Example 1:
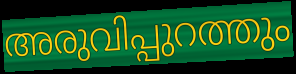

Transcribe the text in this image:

അരുവിപ്പുറത്തും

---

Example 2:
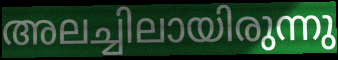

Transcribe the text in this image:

അലച്ചിലായിരുന്നു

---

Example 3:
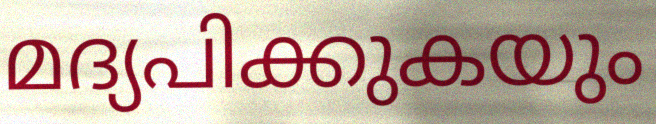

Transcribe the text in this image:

മദ്യപിക്കുകയും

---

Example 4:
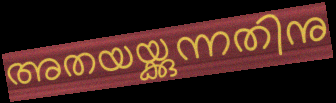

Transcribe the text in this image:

അതയയ്ക്കുന്നതിനു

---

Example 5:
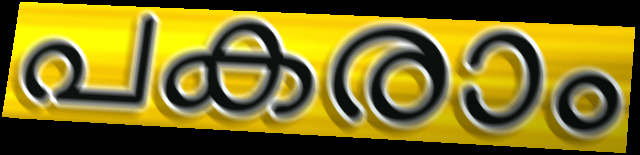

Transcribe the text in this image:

പകരാം